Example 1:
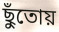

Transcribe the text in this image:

ছুঁতোয়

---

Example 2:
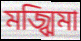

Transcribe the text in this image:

মজ্ঝিমা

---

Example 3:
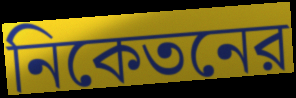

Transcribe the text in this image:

নিকেতনের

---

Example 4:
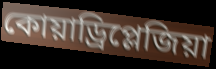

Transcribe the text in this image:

কোয়াড্রিপ্লেজিয়া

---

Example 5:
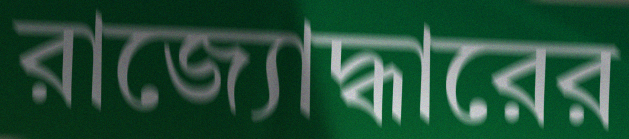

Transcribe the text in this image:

রাজ্যোদ্ধারের